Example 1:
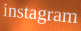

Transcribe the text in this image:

instagram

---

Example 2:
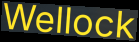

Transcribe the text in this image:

Wellock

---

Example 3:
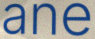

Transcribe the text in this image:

ane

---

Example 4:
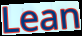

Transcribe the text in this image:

Lean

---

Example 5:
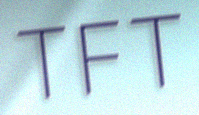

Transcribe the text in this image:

TFT